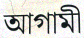
আগামী